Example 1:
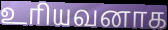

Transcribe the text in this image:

உரியவனாக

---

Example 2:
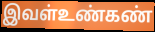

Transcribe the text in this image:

இவள்உண்கண்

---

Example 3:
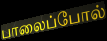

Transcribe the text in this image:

பாலைப்போல்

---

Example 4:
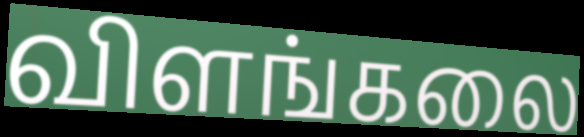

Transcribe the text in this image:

விளங்கலை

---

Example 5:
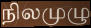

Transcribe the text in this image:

நிலமுழு